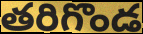
తరిగొండ